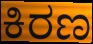
ಕಿರಣ